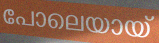
പോലെയായ്